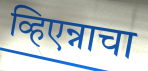
व्हिएन्नाचा